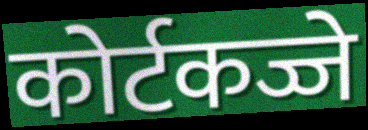
कोर्टकज्जे